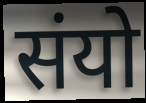
संयो